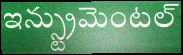
ఇన్స్ట్రుమెంటల్